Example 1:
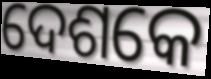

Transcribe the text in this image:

ଦେଶକେ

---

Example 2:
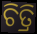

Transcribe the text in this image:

ଚିତ୍ରି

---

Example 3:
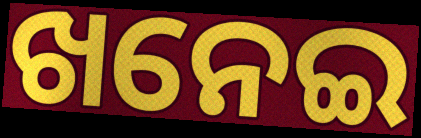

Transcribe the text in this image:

ଖନେଇ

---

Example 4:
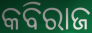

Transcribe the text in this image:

କବିରାଜ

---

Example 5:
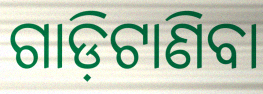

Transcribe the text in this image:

ଗାଡ଼ିଟାଣିବା